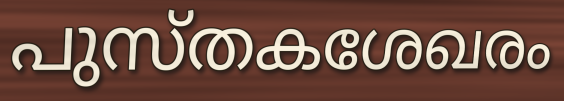
പുസ്തകശേഖരം